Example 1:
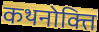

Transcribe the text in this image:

कथनोक्ति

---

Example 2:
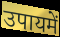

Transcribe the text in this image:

उपायमें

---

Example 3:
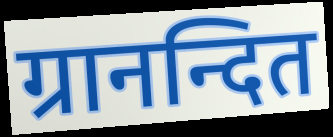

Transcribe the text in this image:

ग्रानन्दित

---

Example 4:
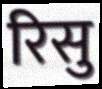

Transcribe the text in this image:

रिसु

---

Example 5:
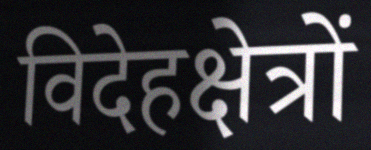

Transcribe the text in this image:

विदेहक्षेत्रों